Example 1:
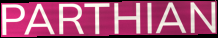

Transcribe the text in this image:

PARTHIAN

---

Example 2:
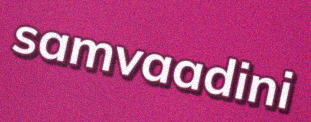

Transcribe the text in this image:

samvaadini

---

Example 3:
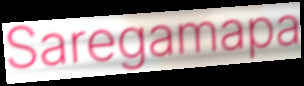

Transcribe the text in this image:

Saregamapa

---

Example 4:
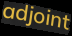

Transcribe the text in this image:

adjoint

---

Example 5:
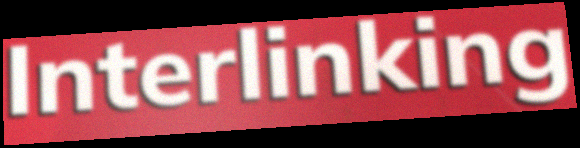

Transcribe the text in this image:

Interlinking